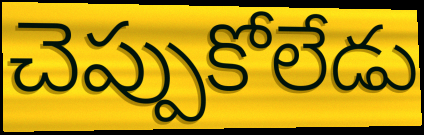
చెప్పుకోలేడు